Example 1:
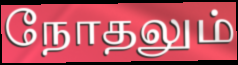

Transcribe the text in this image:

நோதலும்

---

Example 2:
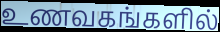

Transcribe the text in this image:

உணவகங்களில்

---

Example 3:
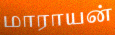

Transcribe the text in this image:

மாராயன்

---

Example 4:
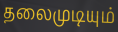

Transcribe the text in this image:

தலைமுடியும்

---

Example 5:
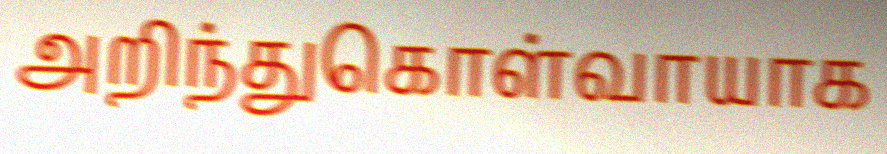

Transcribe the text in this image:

அறிந்துகொள்வாயாக